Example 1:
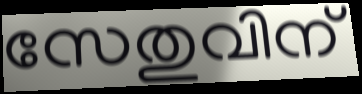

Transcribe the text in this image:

സേതുവിന്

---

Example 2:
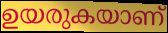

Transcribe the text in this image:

ഉയരുകയാണ്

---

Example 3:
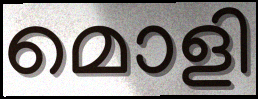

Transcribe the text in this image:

മൊളി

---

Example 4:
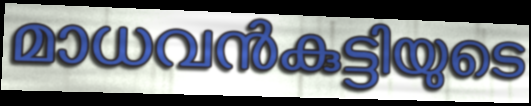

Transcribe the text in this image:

മാധവൻകുട്ടിയുടെ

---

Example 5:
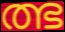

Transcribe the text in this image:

ത്ഭ